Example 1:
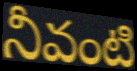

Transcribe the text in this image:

నీవంటి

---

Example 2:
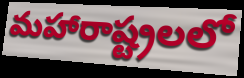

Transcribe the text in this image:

మహారాష్ట్రలలో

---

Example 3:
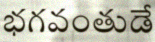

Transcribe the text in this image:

భగవంతుడే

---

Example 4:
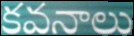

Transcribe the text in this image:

కవనాలు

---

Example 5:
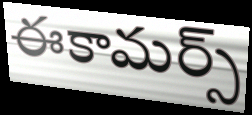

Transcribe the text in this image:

ఈకామర్స్